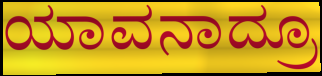
ಯಾವನಾದ್ರೂ